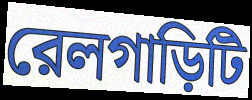
রেলগাড়িটি